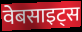
वेबसाइट्स